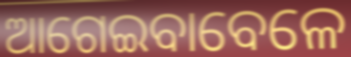
ଆଗେଇବାବେଳେ